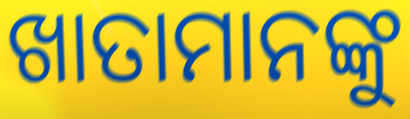
ଖାତାମାନଙ୍କୁ